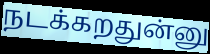
நடக்கறதுன்னு